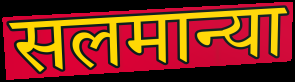
सलमान्या